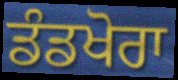
ਡੰਡਖੋਰਾ